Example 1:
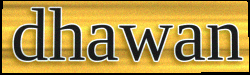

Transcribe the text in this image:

dhawan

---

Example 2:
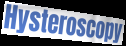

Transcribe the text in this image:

Hysteroscopy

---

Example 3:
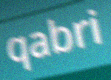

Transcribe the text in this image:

qabri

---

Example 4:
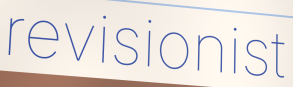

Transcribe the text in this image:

revisionist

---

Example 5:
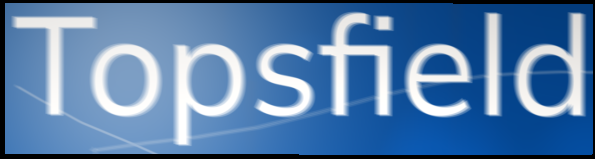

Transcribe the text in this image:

Topsfield